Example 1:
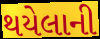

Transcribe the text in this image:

થયેલાની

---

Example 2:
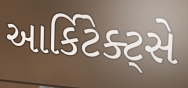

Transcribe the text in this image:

આર્કિટેક્ટ્સે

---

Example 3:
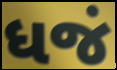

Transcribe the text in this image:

ધજં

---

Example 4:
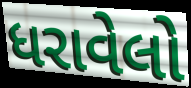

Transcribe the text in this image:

ધરાવેલો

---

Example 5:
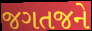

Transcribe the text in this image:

જગતજને